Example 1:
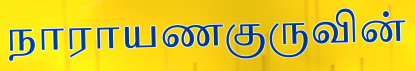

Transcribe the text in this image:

நாராயணகுருவின்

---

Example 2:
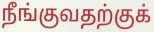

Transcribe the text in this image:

நீங்குவதற்குக்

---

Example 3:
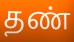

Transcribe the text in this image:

தண்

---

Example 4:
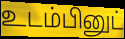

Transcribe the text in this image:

உடம்பினுட்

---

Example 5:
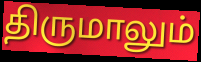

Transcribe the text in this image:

திருமாலும்